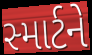
સ્માર્ટને